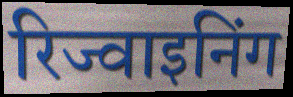
रिज्वाइनिंग